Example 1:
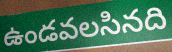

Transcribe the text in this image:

ఉండవలసినది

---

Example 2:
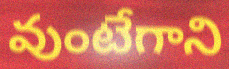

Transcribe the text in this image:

వుంటేగాని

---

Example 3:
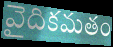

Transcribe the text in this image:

వైదికమతం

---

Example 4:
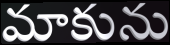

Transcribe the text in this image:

మాకును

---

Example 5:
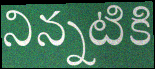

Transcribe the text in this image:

నిన్నటికి